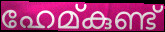
ഹേമ്കുണ്ട്